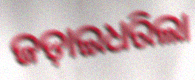
ଜଡ଼ାଇଧରିଲା